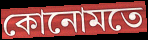
কোনোমতে